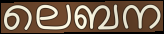
ലെബന